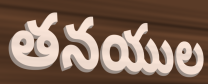
తనయుల